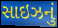
સાઇઝનું